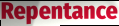
Repentance